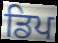
ਡਿਪ